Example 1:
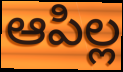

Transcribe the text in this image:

ఆపిల్ల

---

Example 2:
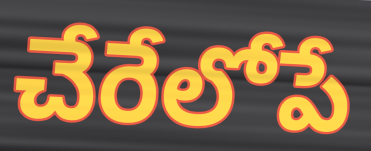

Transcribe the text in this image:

చేరేలోపే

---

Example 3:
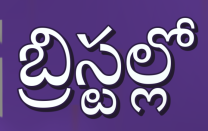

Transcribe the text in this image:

బ్రిస్టల్లో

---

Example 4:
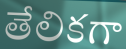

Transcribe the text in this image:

తేలికగా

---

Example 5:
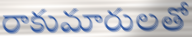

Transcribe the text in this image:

రాకుమారులతో